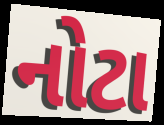
નોટા